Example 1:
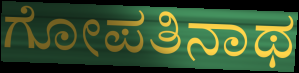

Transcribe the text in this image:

ಗೋಪತಿನಾಥ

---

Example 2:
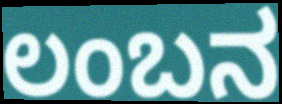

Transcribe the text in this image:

ಲಂಬನ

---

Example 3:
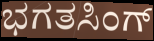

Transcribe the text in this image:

ಭಗತಸಿಂಗ್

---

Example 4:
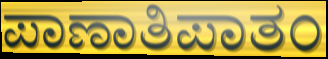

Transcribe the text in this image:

ಪಾಣಾತಿಪಾತಂ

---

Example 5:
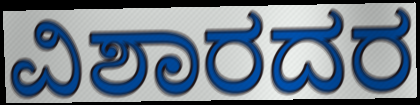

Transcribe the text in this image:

ವಿಶಾರದರ